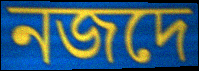
নজদে